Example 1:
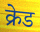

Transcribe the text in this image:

क्रेड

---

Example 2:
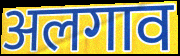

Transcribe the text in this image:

अलगाव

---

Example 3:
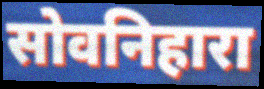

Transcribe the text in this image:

सोवनिहारा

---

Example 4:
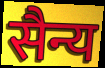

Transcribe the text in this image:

सैन्य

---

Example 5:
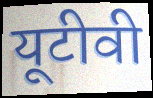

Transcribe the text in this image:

यूटीवी